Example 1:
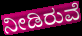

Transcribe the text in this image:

ನೀಡಿರುವೆ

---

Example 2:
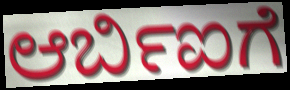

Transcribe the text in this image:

ಆರ್ಬಿಐಗೆ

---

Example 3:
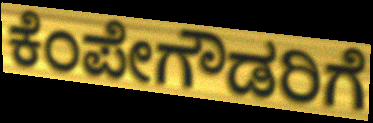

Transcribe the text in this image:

ಕೆಂಪೇಗೌಡರಿಗೆ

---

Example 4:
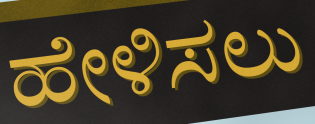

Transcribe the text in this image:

ಹೇಳಿಸಲು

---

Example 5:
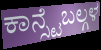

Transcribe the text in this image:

ಕಾನ್ಸ್ಟೆಬಲ್ಗಳ